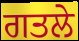
ਗਤਲੇ